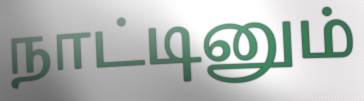
நாட்டினும்